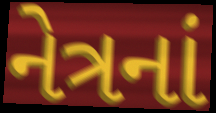
નેત્રનાં